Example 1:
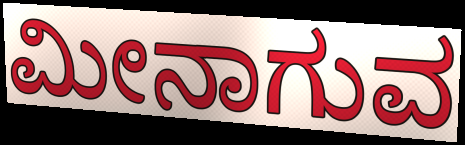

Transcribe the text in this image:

ಮೀನಾಗುವ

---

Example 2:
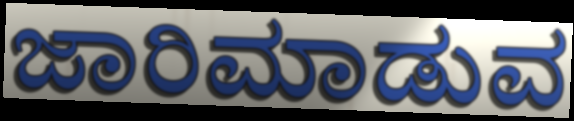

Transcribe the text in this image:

ಜಾರಿಮಾಡುವ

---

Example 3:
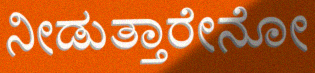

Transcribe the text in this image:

ನೀಡುತ್ತಾರೇನೋ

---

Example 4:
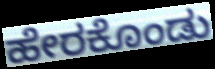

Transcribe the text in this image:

ಹೇರಕೊಂಡು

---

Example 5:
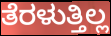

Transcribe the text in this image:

ತೆರಳುತ್ತಿಲ್ಲ